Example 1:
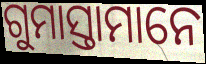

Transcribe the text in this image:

ଗୁମାସ୍ତାମାନେ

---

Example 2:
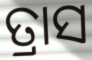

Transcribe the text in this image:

ତ୍ରାସ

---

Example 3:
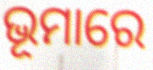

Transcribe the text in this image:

ଭୂମାରେ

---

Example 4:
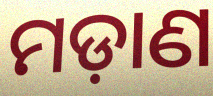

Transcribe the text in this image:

ମଡ଼ାଣ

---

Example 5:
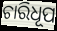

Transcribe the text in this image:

ଚାରିଧୂପ